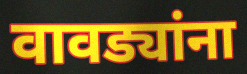
वावड्यांना